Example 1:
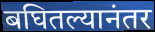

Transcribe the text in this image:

बघितल्यानंतर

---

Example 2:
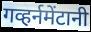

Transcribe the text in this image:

गव्हर्नमेंटानी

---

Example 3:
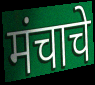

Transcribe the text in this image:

मंचाचे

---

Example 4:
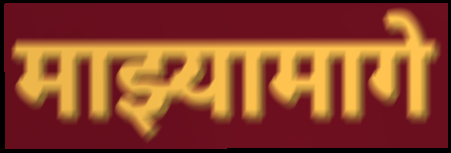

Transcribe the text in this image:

माझ्यामागे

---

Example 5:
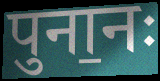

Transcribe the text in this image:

पुना॒नः